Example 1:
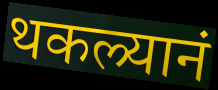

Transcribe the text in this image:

थकल्यानं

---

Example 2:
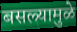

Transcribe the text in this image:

बसल्यामुळे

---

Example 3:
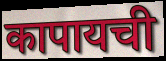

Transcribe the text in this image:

कापायची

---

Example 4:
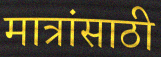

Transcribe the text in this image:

मात्रांसाठी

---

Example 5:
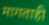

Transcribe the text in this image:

मागताही